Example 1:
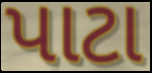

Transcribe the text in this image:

પાટા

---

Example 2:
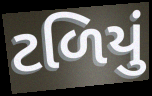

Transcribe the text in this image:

ટળિયું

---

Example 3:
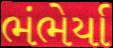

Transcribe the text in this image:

ભંભેર્યા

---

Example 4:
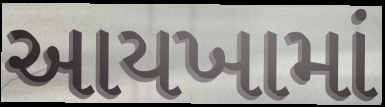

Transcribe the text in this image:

આયખામાં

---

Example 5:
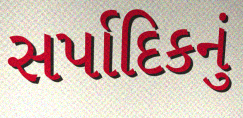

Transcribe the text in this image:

સર્પાદિકનું